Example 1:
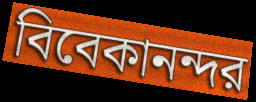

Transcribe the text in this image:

বিবেকানন্দর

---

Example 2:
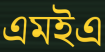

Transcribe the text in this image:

এমইএ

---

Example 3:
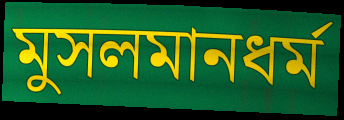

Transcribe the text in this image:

মুসলমানধর্ম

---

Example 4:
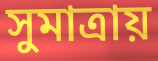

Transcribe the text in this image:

সুমাত্রায়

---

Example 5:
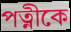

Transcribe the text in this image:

পত্নীকে